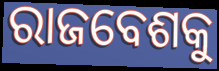
ରାଜବେଶକୁ